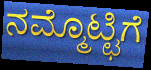
ನಮ್ಮೊಟ್ಟಿಗೆ